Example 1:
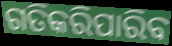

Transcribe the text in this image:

ଗତିକରିପାରିବ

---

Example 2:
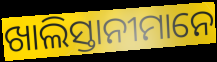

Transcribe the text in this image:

ଖାଲିସ୍ତାନୀମାନେ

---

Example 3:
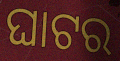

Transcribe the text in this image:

ଘାଟର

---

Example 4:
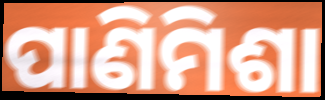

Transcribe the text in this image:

ପାଣିମିଶା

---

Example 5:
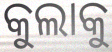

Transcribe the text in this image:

କୁଲାକୁ